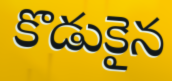
కొడుకైన